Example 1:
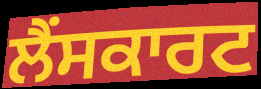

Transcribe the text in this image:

ਲੈਂਸਕਾਰਟ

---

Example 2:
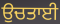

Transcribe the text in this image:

ਉਚਤਾਈ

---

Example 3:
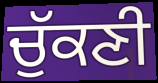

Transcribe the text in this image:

ਚੁੱਕਣੀ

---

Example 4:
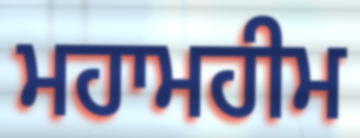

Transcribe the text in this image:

ਮਹਾਮਹੀਮ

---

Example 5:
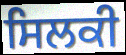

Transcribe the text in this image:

ਸਿਲਕੀ